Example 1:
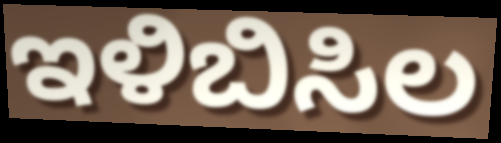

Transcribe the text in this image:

ಇಳಿಬಿಸಿಲ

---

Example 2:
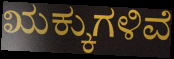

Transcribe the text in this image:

ಋಕ್ಕುಗಳಿವೆ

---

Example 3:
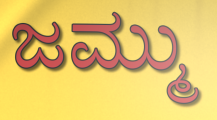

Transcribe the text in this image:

ಜಮ್ಮು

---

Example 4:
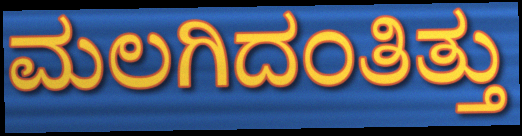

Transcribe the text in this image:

ಮಲಗಿದಂತಿತ್ತು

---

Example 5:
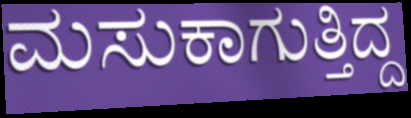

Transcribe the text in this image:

ಮಸುಕಾಗುತ್ತಿದ್ದ